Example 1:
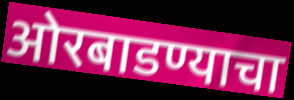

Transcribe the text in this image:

ओरबाडण्याचा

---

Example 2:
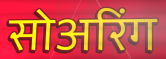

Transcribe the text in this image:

सोअरिंग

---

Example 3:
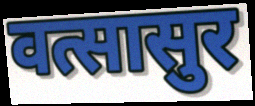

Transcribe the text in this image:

वत्सासुर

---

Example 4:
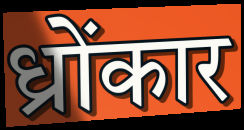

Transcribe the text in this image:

ध्रोंकार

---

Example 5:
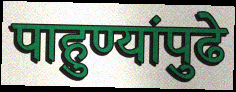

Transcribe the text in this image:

पाहुण्यांपुढे